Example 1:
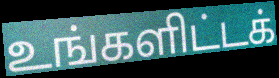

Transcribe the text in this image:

உங்களிட்டக்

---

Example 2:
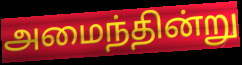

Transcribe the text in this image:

அமைந்தின்று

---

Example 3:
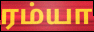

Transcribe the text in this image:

ரம்யா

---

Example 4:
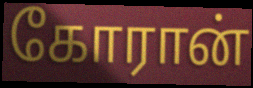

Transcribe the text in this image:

கோரான்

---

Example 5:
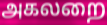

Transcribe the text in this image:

அகலறை